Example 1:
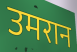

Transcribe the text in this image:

उमरान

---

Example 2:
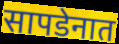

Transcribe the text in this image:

सापडेनात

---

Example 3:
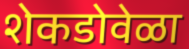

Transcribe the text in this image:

शेकडोवेळा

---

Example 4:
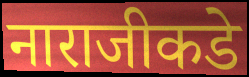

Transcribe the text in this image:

नाराजीकडे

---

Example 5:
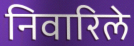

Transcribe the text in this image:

निवारिले